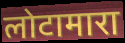
लोटामारा